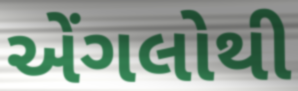
એંગલોથી